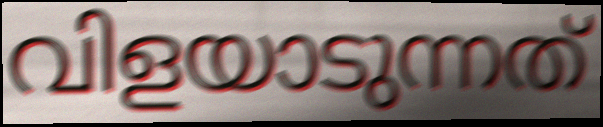
വിളയാടുന്നത്